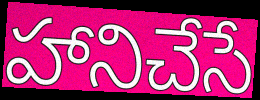
హానిచేసే